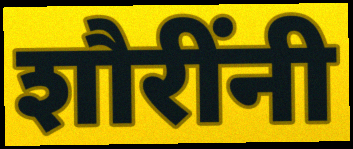
शौरींनी